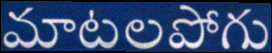
మాటలపోగు